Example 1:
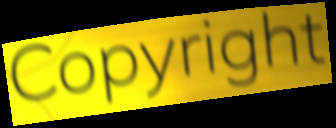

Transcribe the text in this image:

Copyright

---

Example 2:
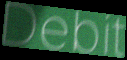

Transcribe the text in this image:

Debit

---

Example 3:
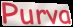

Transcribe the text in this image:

Purva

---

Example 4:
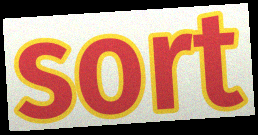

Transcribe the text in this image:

sort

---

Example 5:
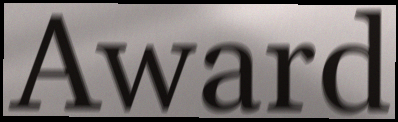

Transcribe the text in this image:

Award